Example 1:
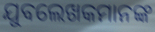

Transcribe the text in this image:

ଯୁବଲେଖକମାନଙ୍କ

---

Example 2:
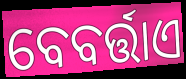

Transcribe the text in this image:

ବେବର୍ତ୍ତାଏ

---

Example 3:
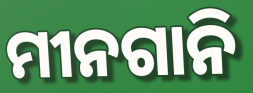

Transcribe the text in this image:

ମୀନଗାନି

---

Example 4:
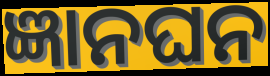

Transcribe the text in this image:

ଜ୍ଞାନଘନ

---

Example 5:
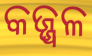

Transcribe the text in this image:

କଜ୍ଜ୍ୱଳ